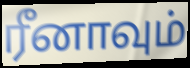
ரீனாவும்